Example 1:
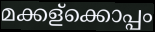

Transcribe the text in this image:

മക്കള്ക്കൊപ്പം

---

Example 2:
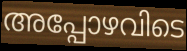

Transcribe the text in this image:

അപ്പോഴവിടെ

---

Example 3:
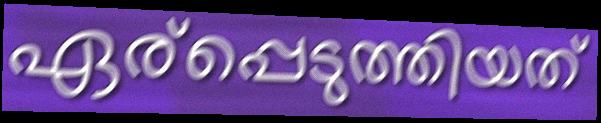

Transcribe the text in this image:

ഏര്പ്പെടുത്തിയത്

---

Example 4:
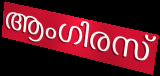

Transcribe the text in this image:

ആംഗിരസ്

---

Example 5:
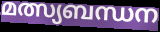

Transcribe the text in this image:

മത്സ്യബന്ധന